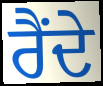
ਰੈਂਦੇ